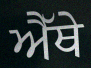
ਐੱਥੇ